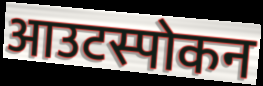
आउटस्पोकन